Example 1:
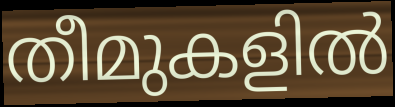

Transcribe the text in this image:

തീമുകളിൽ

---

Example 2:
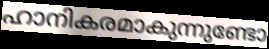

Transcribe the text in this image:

ഹാനികരമാകുന്നുണ്ടോ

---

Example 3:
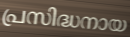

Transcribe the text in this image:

പ്രസിദ്ധനായ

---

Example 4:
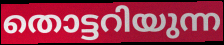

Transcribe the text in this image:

തൊട്ടറിയുന്ന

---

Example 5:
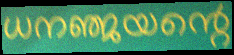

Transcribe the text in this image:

ധനഞ്ജയന്റെ